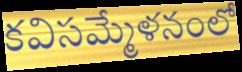
కవిసమ్మేళనంలో